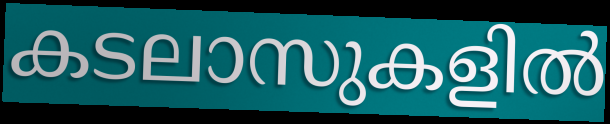
കടലാസുകളിൽ